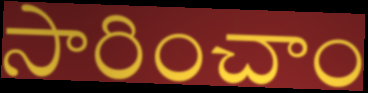
సారించాం